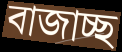
বাজাচ্ছ